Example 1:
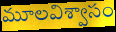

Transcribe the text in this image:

మూలవిశ్వాసం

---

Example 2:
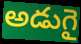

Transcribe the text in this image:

అడుగై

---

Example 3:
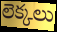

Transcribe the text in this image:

లెక్కలు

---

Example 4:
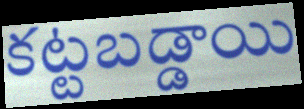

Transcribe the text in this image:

కట్టబడ్డాయి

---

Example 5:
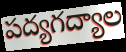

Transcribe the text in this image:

పద్యగద్యాల